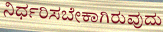
ನಿರ್ಧರಿಸಬೇಕಾಗಿರುವುದು